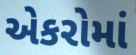
એકરોમાં